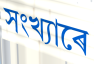
সংখ্যাৰে